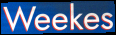
Weekes